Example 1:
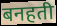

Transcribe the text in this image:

बनहती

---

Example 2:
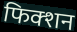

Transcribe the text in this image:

फिक्‍शन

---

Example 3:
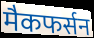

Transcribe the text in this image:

मैकफर्सन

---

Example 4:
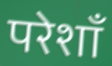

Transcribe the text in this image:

परेशाँ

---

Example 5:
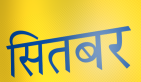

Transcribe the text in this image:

सितबर